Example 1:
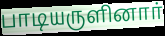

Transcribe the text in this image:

பாடியருளினார்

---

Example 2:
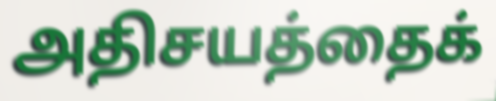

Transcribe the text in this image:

அதிசயத்தைக்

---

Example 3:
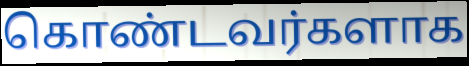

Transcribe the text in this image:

கொண்டவர்களாக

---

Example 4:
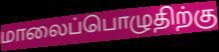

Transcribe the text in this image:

மாலைப்பொழுதிற்கு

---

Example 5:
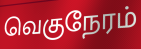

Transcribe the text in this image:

வெகுநேரம்